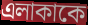
এলাকাকে